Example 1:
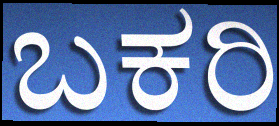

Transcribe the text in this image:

ಬಕರಿ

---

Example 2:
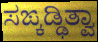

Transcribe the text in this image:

ಸಙ್ಕಡ್ಢಿತ್ವಾ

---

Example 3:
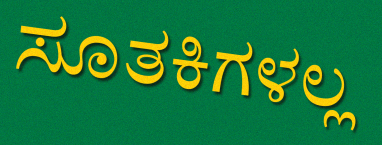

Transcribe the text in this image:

ಸೂತಕಿಗಳಲ್ಲ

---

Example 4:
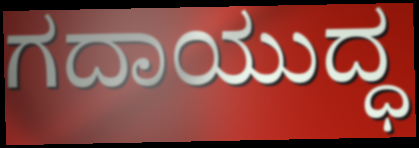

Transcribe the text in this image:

ಗದಾಯುದ್ಧ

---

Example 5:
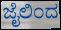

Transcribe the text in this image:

ಜೈಲಿಂದ